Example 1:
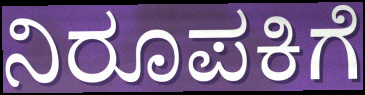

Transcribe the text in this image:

ನಿರೂಪಕಿಗೆ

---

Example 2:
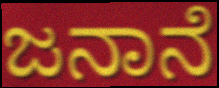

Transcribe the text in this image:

ಜನಾನೆ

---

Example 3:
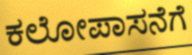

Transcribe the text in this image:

ಕಲೋಪಾಸನೆಗೆ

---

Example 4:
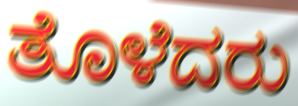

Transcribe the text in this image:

ತೊಳೆದರು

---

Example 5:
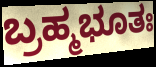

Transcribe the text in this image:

ಬ್ರಹ್ಮಭೂತಃ